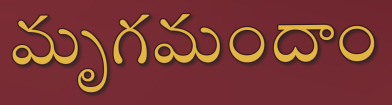
మృగమందాం